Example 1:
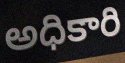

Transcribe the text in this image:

అధికారి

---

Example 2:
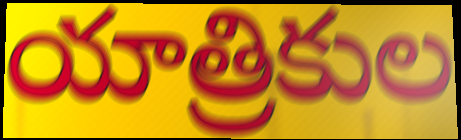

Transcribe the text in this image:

యాత్రికుల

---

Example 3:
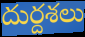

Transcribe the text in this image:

దుర్దశలు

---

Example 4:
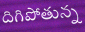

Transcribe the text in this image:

దిగిపోతున్న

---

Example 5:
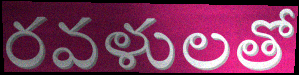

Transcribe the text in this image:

రవళులతో